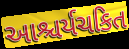
આશ્ચર્યચકિત